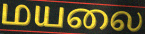
மயலை